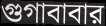
গুগাবাবার